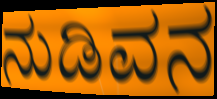
ನುಡಿವನ